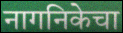
नागनिकेचा